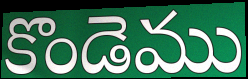
కొండెము